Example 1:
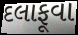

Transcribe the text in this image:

દલાફૂવા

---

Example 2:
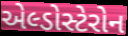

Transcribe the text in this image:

એલ્ડોસ્ટેરોન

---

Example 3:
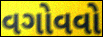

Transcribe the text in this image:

વગોવવો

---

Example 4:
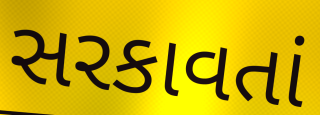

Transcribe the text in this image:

સરકાવતાં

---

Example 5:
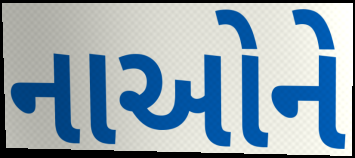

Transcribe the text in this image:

નાઓને